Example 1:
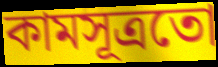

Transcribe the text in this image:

কামসূত্ৰতো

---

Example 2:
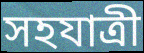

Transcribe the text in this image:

সহযাত্ৰী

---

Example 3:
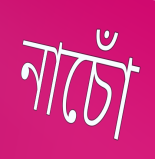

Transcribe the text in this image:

নাচোঁ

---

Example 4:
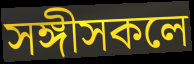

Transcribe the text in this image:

সঙ্গীসকলে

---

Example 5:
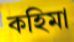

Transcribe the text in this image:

কহিমা